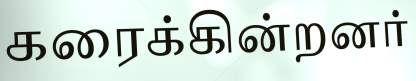
கரைக்கின்றனர்